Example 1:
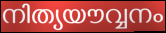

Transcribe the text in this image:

നിത്യയൗവ്വനം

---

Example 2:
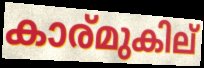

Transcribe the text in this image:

കാര്മുകില്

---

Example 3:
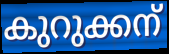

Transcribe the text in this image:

കുറുക്കന്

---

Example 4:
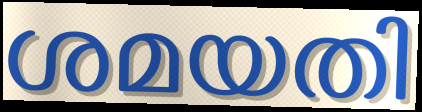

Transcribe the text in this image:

ശമയതി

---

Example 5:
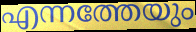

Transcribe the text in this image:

എന്നത്തേയും